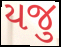
યજુ